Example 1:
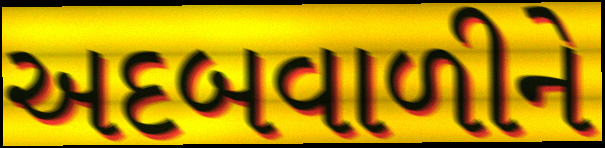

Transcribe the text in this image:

અદબવાળીને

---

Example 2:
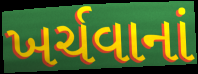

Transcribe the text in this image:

ખર્ચવાનાં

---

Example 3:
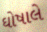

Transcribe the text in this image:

ઘોષાલે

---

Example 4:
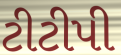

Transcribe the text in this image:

ટીટીપી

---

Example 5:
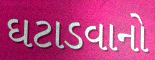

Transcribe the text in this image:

ઘટાડવાનો